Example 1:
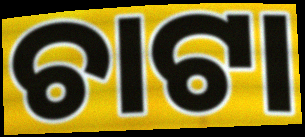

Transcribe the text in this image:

ଚାଟା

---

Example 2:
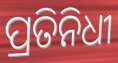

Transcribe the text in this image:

ପ୍ରତିନିଧୀ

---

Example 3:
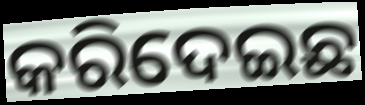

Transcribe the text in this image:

କରିଦେଇଛ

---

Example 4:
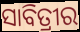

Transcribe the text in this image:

ସାବିତ୍ରୀର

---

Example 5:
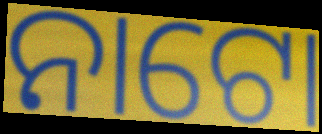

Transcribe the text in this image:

ନାଟୋ